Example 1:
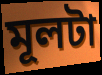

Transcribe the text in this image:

মূলটা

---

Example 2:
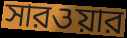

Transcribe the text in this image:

সারওয়ার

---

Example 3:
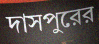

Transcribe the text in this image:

দাসপুরের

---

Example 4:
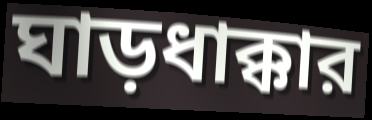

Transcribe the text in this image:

ঘাড়ধাক্কার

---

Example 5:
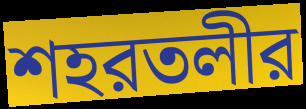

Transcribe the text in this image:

শহরতলীর